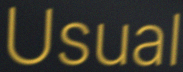
Usual